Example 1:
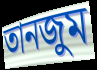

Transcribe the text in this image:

তানজুম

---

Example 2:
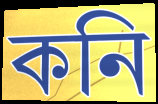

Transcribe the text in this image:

কনি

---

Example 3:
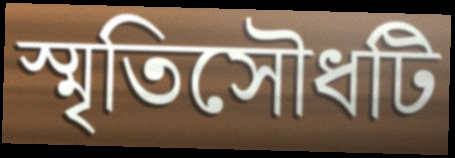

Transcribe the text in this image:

স্মৃতিসৌধটি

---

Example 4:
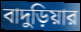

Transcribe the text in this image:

বাদুড়িয়ার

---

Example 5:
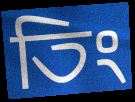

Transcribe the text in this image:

তিং